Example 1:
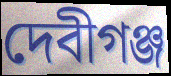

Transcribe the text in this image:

দেবীগঞ্জ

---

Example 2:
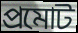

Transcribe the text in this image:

প্রমোট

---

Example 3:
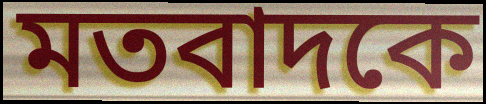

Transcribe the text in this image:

মতবাদকে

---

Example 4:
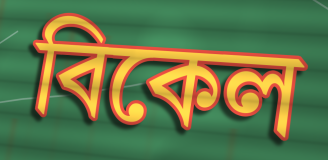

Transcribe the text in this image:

বিকেল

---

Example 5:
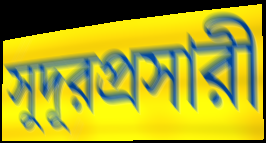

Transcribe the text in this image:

সুদূরপ্রসারী